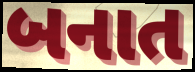
બનાત